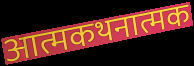
आत्मकथनात्मक